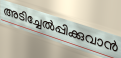
അടിച്ചേൽപ്പിക്കുവാൻ